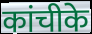
कांचीके